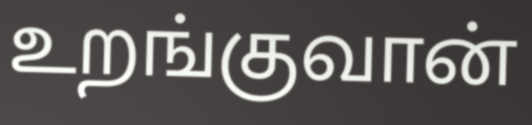
உறங்குவான்